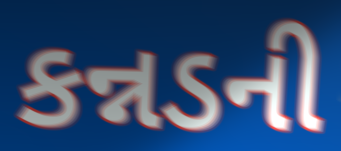
કન્નડની